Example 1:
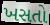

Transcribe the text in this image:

ખસતો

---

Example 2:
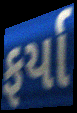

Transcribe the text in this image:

ફર્યા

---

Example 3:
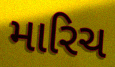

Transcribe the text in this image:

મારિચ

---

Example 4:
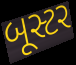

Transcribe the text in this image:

બૂસ્ટર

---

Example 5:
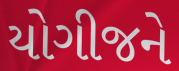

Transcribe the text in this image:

યોગીજને